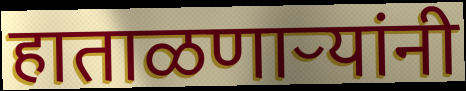
हाताळणाऱ्यांनी